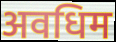
अवधिम